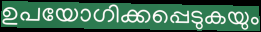
ഉപയോഗിക്കപ്പെടുകയും